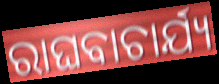
ରାଘବାଚାର୍ଯ୍ୟ